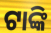
ଟାଙ୍କି